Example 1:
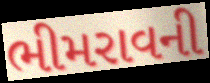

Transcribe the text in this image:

ભીમરાવની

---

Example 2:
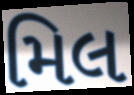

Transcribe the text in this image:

મિલ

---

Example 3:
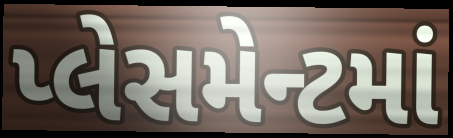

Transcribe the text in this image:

પ્લેસમેન્ટમાં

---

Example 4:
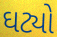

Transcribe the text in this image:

ઘટ્યો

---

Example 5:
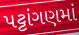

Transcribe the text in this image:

પટ્ટાંગણમાં